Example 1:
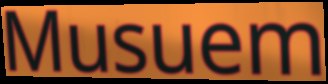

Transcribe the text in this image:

Musuem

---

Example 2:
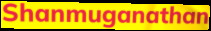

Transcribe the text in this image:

Shanmuganathan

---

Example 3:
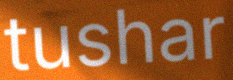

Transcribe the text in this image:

tushar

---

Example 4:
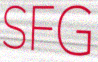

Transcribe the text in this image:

SFG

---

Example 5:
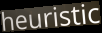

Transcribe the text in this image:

heuristic